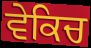
ਵੇਕਿਚ